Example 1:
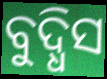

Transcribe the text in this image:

ବୁଦ୍ଧିସ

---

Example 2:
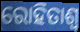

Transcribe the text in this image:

ରୋହିତାଶ୍ୱ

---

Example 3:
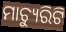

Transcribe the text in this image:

ମାଚ୍ୟୁରିଟି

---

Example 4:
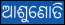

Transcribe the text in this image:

ଆଶୁଣୋତି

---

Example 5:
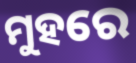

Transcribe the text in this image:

ମୁହରେ